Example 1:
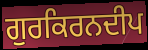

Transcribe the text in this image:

ਗੁਰਕਿਰਨਦੀਪ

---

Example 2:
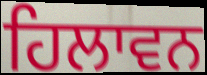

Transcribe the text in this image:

ਹਿਲਾਵਨ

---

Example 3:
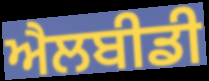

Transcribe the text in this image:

ਐਲਬੀਡੀ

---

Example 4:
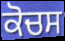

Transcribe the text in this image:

ਕੋਚਸ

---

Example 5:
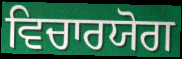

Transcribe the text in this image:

ਵਿਚਾਰਯੋਗ